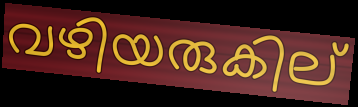
വഴിയരുകില്